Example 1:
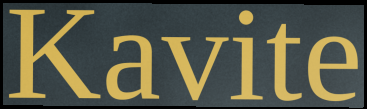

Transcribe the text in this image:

Kavite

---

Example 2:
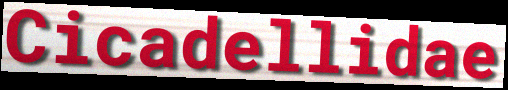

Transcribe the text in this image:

Cicadellidae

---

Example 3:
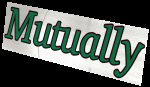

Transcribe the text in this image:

Mutually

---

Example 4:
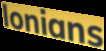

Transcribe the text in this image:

Ionians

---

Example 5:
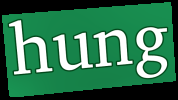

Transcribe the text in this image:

hung